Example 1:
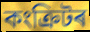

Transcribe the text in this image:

কংক্ৰিটৰ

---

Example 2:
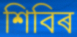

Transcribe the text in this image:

শিবিৰ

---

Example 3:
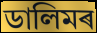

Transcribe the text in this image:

ডালিমৰ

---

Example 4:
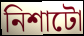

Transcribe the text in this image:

নিশাটো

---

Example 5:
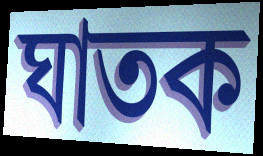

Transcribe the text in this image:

ঘাতক